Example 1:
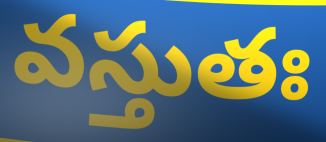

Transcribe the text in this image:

వస్తుతః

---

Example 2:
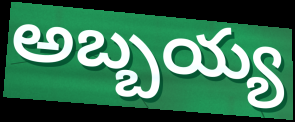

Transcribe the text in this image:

అబ్బయ్య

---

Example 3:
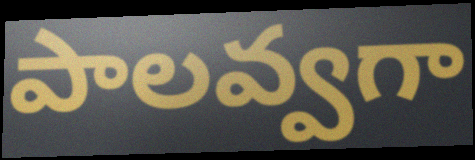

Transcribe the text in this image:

పాలవ్వగా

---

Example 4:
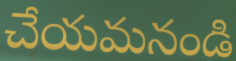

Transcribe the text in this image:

చేయమనండి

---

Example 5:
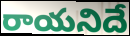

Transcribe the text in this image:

రాయనిదే